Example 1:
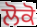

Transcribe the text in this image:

ਲੋਕੋ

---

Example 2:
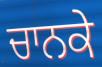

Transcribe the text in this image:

ਚਾਨਕੇ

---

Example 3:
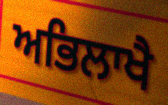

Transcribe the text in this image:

ਅਭਿਲਾਖੈ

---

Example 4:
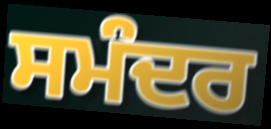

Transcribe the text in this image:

ਸਮੰਦਰ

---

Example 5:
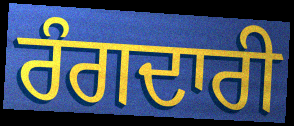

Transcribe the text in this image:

ਰੰਗਦਾਰੀ